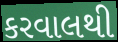
કરવાલથી